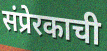
संप्रेरकाची